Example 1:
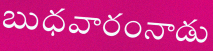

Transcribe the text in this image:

బుధవారంనాడు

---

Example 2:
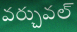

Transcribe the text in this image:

వర్చువల్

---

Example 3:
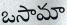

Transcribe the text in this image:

ఒసామా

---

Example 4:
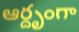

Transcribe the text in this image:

ఆర్దృంగా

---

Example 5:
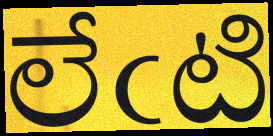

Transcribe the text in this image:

లేఁటి